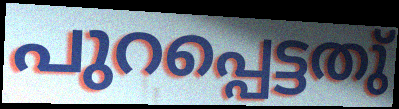
പുറപ്പെട്ടതു്